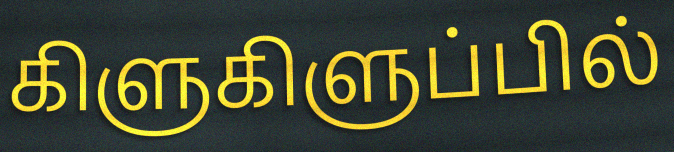
கிளுகிளுப்பில்